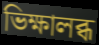
ভিক্ষালব্ধ